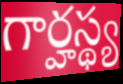
గార్హస్థ్య